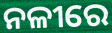
ନଳୀରେ